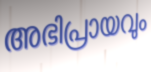
അഭിപ്രായവും